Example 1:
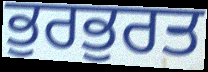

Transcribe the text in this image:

ਭੁਰਭੁਰਤ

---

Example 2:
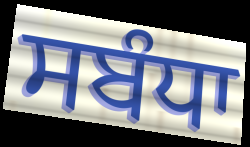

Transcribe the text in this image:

ਸਬੰਧਾ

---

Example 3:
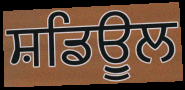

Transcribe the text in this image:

ਸ਼ਡਿਉੂਲ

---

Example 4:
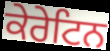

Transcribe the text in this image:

ਕੇਰੇਟਿਨ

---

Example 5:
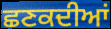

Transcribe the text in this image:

ਛਣਕਦੀਆਂ